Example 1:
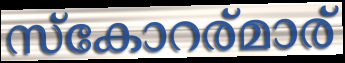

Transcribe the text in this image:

സ്കോറര്മാര്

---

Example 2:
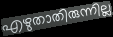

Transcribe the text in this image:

എഴുതാതിരുന്നില്ല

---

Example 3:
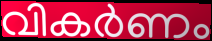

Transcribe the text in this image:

വികർണം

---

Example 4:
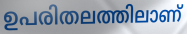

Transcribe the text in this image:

ഉപരിതലത്തിലാണ്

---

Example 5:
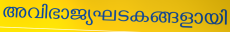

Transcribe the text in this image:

അവിഭാജ്യഘടകങ്ങളായി